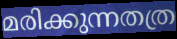
മരിക്കുന്നതത്ര